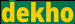
dekho